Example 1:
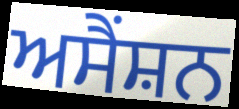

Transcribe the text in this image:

ਅਸੈਂਸ਼ਨ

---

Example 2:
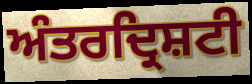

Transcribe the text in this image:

ਅੰਤਰਦ੍ਰਿਸ਼ਟੀ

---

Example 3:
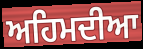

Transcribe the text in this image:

ਅਹਿਮਦੀਆ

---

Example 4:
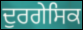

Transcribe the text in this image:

ਦੁਰਗੇਸਿਕ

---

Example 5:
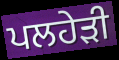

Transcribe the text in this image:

ਪਲਹੇੜੀ